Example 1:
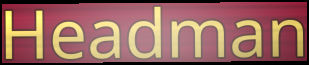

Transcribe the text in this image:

Headman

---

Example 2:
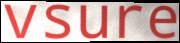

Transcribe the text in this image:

vsure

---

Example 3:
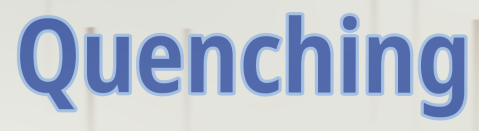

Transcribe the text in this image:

Quenching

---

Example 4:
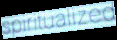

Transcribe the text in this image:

spiritualized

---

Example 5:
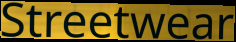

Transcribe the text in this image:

Streetwear